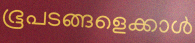
ഭൂപടങ്ങളെക്കാൾ